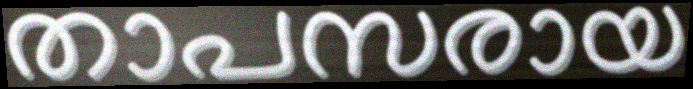
താപസരായ